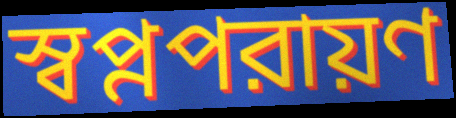
স্বপ্নপরায়ণ